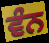
ਵੰਨ